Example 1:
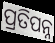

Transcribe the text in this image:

ପ୍ରତିପନ୍ନ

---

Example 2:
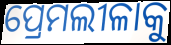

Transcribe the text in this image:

ପ୍ରେମଲୀଳାକୁ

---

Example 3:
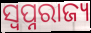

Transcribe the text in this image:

ସ୍ୱପ୍ନରାଜ୍ୟ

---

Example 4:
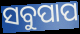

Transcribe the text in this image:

ସବୁପାପ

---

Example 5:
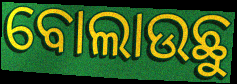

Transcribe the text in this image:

ବୋଲାଉଛୁ